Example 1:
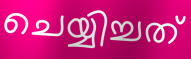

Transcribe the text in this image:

ചെയ്യിച്ചത്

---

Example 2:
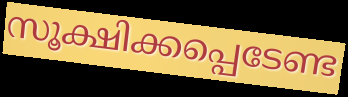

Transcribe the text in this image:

സൂക്ഷിക്കപ്പെടേണ്ട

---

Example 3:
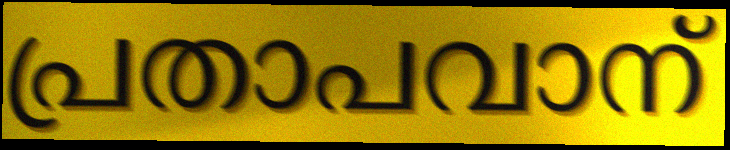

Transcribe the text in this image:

പ്രതാപവാന്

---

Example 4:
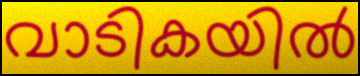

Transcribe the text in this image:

വാടികയിൽ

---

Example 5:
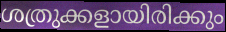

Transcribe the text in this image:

ശത്രുക്കളായിരിക്കും